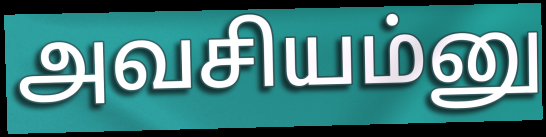
அவசியம்னு